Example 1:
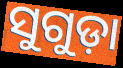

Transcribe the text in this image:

ସୁଗୁଡ଼ା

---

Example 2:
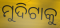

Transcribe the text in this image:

ମୁଦିଟାକୁ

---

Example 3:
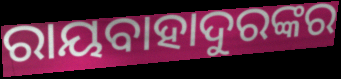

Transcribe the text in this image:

ରାୟବାହାଦୁରଙ୍କର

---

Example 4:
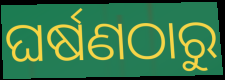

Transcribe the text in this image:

ଘର୍ଷଣଠାରୁ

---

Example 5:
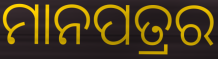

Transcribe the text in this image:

ମାନପତ୍ରର